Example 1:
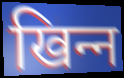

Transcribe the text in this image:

खिन्‍न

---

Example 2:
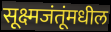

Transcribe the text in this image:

सूक्ष्मजंतूंमधील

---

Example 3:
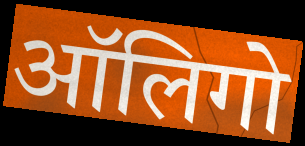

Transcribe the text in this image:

ऑलिगो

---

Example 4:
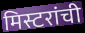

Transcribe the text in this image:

मिस्टरांची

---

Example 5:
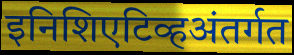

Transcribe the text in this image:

इनिशिएटिव्हअंतर्गत